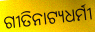
ଗୀତିନାଟ୍ୟଧର୍ମୀ